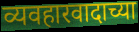
व्यवहारवादाच्या